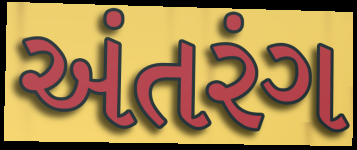
અંતરંગ